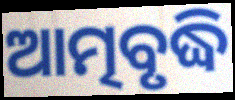
ଆତ୍ମବୃଦ୍ଧି